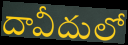
దావీదులో